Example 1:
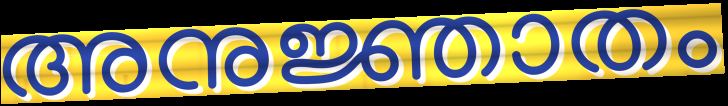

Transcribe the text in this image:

അനുജ്ഞാതം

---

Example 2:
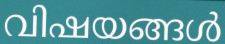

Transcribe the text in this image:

വിഷയങ്ങൾ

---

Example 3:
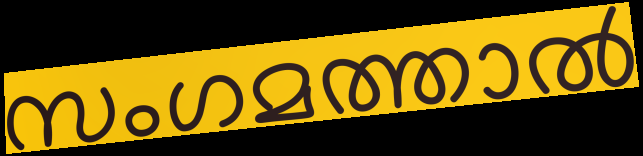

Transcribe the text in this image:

സംഗമത്താൽ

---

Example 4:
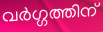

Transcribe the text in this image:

വർഗ്ഗത്തിന്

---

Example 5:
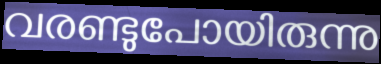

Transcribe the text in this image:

വരണ്ടുപോയിരുന്നു